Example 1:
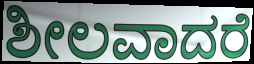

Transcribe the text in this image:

ಶೀಲವಾದರೆ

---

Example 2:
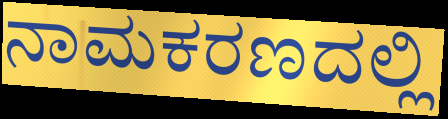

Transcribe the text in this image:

ನಾಮಕರಣದಲ್ಲಿ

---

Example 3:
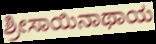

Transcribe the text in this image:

ಶ್ರೀಸಾಯಿನಾಥಾಯ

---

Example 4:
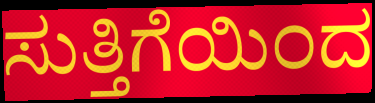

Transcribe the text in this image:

ಸುತ್ತಿಗೆಯಿಂದ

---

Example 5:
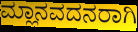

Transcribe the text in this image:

ಮ್ಲಾನವದನರಾಗಿ